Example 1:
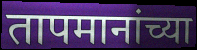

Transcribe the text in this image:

तापमानांच्या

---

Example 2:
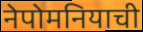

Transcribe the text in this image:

नेपोमनियाची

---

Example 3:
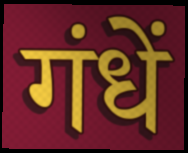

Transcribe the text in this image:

गंधें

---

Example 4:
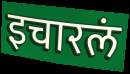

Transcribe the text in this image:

इचारलं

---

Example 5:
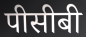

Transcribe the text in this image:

पीसीबी